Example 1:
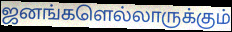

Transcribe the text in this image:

ஜனங்களெல்லாருக்கும்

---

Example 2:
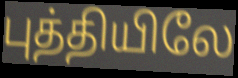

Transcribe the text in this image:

புத்தியிலே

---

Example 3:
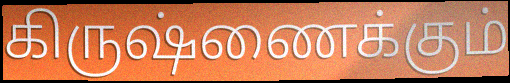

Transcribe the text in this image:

கிருஷ்ணைக்கும்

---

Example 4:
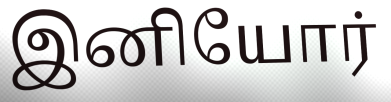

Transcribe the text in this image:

இனியோர்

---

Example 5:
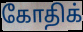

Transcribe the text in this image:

கோதிக்